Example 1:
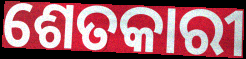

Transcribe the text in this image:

ଶେତକାରୀ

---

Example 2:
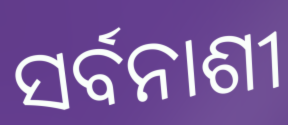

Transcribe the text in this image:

ସର୍ବନାଶୀ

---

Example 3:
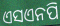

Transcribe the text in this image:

ଏସଏନପି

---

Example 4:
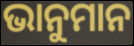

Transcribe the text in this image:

ଭାନୁମାନ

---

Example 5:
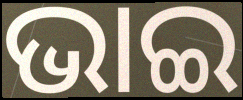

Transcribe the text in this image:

ଭାଇ